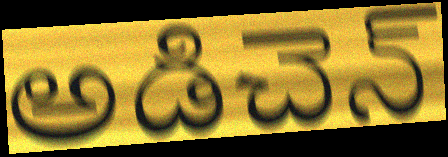
అడిచెన్